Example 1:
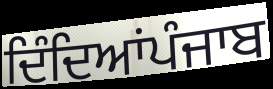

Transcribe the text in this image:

ਦਿੰਦਿਆਂਪੰਜਾਬ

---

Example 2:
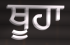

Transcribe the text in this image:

ਥੂਹਾ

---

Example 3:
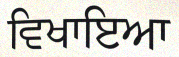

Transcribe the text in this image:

ਵਿਖਾਇਆ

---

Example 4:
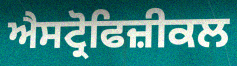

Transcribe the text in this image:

ਐਸਟ੍ਰੋਫਿਜ਼ੀਕਲ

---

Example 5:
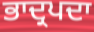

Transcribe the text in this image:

ਭਾਦ੍ਰਪਦਾ